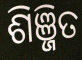
ଶିଞ୍ଜିତ